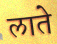
लाते